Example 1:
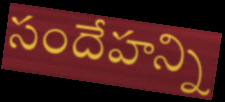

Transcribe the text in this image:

సందేహన్ని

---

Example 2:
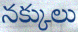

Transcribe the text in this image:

నక్కులు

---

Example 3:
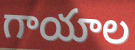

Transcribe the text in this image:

గాయాల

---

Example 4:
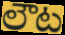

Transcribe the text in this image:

లౌట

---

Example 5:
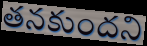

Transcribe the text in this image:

తనకుందని